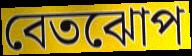
বেতঝোপ